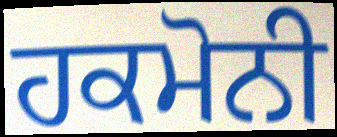
ਹਕਮੋਨੀ